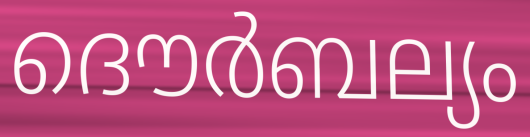
ദൌർബല്യം